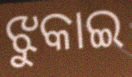
ଝୁକାଇ